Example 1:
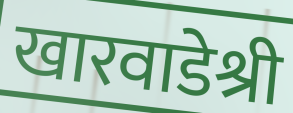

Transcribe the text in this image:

खारवाडेश्री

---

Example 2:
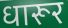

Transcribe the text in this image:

धारूर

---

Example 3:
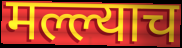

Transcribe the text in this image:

मल्ल्याच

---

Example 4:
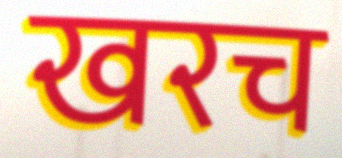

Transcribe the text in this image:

खरच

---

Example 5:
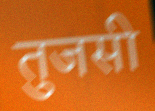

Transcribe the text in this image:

तुजसी